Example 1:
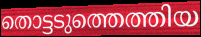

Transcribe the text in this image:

തൊട്ടടുത്തെത്തിയ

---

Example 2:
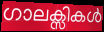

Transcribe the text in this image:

ഗാലക്സികൾ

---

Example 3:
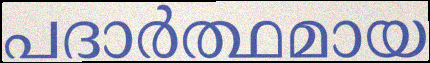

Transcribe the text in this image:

പദാർത്ഥമായ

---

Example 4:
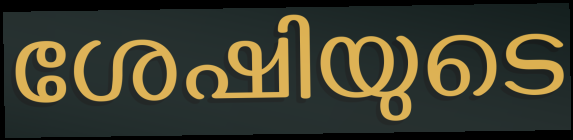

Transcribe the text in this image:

ശേഷിയുടെ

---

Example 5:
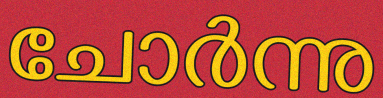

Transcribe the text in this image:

ചോർന്നു